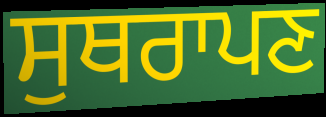
ਸੁਥਰਾਪਣ